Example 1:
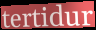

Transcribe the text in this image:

tertidur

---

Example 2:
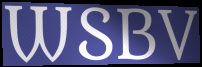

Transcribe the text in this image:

WSBV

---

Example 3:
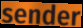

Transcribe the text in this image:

sender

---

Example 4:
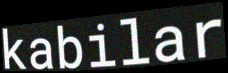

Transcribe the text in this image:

kabilar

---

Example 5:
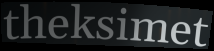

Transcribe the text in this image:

theksimet